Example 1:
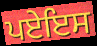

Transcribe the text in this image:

ਪਏਇਸ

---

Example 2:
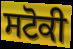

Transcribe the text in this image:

ਸਟੋਕੀ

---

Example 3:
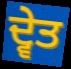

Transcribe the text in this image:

ਦ੍ਵੇਤ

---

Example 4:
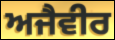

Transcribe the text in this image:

ਅਜੈਵੀਰ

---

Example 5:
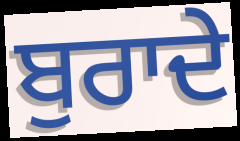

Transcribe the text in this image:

ਬੁਰਾਦੇ